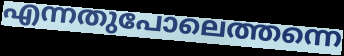
എന്നതുപോലെത്തന്നെ